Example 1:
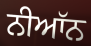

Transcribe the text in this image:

ਨੀਆੱਨ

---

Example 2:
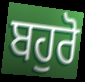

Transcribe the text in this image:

ਬਹੁਰੋ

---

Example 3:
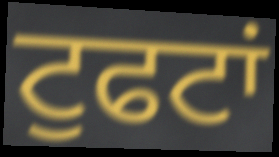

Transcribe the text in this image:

ਟੁਫਟਾਂ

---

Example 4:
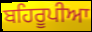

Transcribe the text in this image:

ਬਹਿਰੂਪੀਆ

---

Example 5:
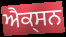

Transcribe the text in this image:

ਐਕ੍ਸਨ